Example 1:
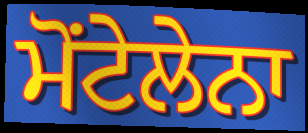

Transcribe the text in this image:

ਮੋਂਟੇਲੇਨਾ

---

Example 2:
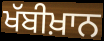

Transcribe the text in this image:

ਖੱਬੀਖ਼ਾਨ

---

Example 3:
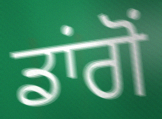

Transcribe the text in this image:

ਡਾਂਗੋਂ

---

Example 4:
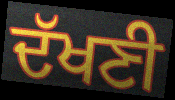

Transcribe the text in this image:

ਦੱਖਣੀ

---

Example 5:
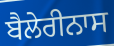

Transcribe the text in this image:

ਬੈਲੇਰੀਨਾਸ